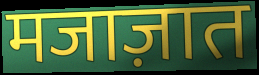
मजाज़ात